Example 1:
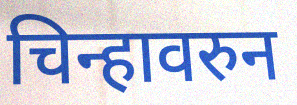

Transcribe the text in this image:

चिन्हावरुन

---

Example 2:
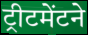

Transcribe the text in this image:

ट्रीटमेंटने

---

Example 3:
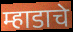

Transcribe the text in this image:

म्हाडाचे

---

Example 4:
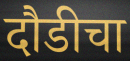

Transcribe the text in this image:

दौडीचा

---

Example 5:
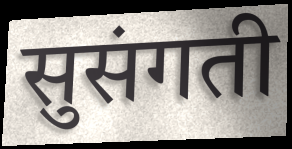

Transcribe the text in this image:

सुसंगती